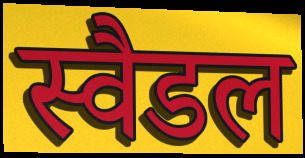
स्वैडल